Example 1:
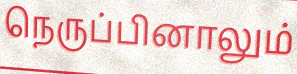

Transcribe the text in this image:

நெருப்பினாலும்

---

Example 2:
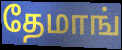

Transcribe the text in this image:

தேமாங்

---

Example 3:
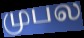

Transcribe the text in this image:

முபல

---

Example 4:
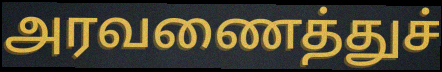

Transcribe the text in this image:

அரவணைத்துச்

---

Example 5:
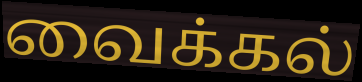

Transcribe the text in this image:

வைக்கல்